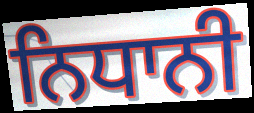
ਨਿਧਾਨੀ